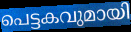
പെട്ടകവുമായി